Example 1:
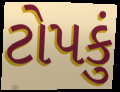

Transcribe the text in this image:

ટોપકું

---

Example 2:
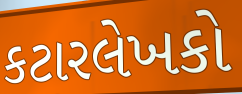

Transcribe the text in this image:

કટારલેખકો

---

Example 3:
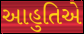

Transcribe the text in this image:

આહુતિએ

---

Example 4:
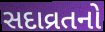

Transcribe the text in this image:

સદાવ્રતનો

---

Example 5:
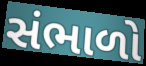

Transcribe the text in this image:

સંભાળો